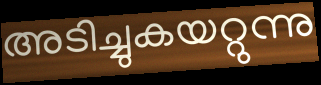
അടിച്ചുകയറ്റുന്നു